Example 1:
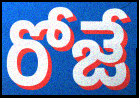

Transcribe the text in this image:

రోజే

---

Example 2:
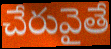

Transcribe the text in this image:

చేరువైతే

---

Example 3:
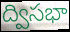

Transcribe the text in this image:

ద్విసభా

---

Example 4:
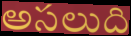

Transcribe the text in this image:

అసలుది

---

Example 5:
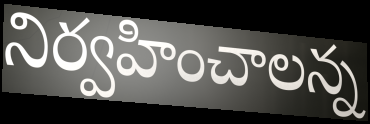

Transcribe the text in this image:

నిర్వహించాలన్న